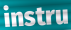
instru